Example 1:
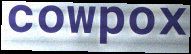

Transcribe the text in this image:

cowpox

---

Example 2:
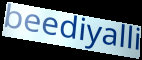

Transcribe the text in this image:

beediyalli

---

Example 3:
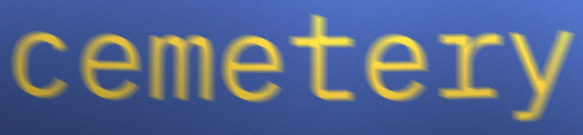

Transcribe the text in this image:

cemetery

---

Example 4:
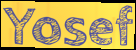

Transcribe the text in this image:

Yosef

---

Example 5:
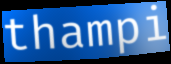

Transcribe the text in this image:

thampi